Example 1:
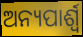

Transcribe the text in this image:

ଅନ୍ୟପାର୍ଶ୍ୱ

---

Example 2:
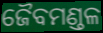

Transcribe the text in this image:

ଜୈବମଣ୍ଡଳ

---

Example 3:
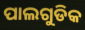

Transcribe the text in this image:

ପାଲଗୁଡିକ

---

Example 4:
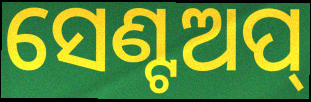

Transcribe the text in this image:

ସେଣ୍ଟଅପ୍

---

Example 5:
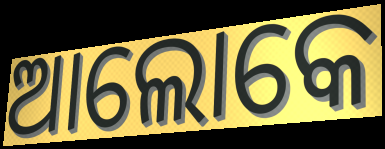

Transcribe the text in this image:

ଆଲୋକେ